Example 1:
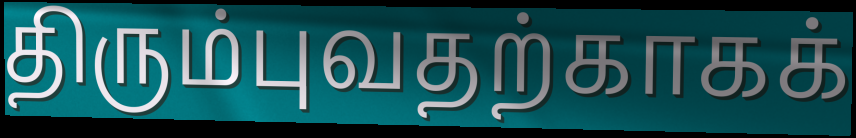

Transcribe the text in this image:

திரும்புவதற்காகக்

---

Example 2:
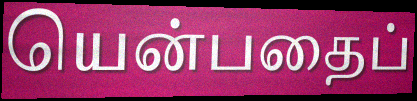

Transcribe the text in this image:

யென்பதைப்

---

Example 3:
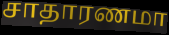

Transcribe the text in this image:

சாதாரணமா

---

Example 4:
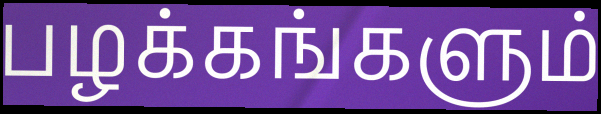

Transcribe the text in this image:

பழக்கங்களும்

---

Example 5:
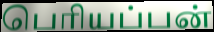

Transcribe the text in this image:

பெரியப்பன்